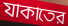
যাকাতের